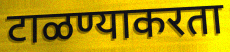
टाळण्याकरता